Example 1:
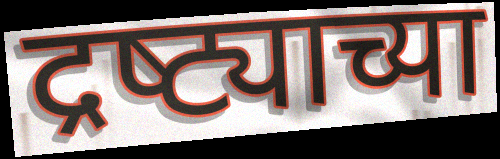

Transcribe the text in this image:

द्रष्ट्याच्या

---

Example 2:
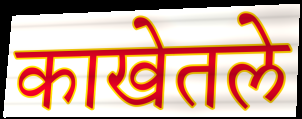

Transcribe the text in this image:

काखेतले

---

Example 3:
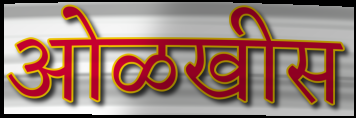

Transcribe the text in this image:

ओळखीस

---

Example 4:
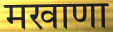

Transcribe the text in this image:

मखाणा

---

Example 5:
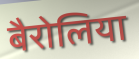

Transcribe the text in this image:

बैरोलिया